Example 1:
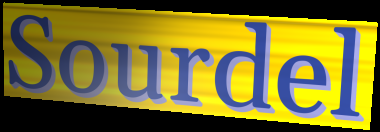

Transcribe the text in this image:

Sourdel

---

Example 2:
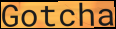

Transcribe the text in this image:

Gotcha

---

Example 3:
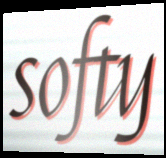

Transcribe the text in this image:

softy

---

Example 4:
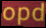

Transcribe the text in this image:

opd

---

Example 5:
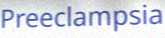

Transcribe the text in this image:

Preeclampsia